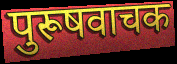
पुरूषवाचक